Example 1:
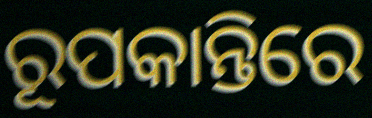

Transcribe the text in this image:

ରୂପକାନ୍ତିରେ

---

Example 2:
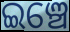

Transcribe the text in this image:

ଇଞ୍ଚେ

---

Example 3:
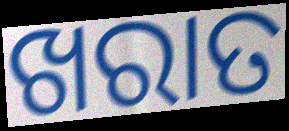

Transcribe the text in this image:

ଖରାତ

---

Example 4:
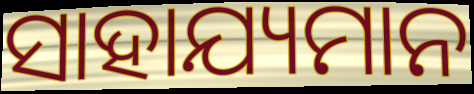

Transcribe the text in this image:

ସାହାଯ୍ୟମାନ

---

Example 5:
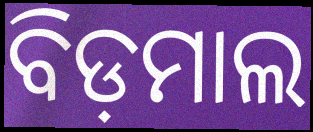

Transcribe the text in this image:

ବିଡ଼ମାଲ